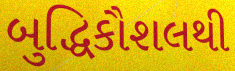
બુદ્ધિકૌશલથી